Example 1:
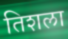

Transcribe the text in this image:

तिशला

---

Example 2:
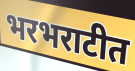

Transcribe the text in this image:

भरभराटीत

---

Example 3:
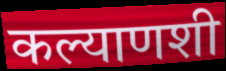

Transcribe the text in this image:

कल्याणशी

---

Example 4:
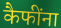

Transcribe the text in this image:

कैफींना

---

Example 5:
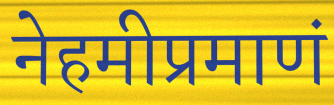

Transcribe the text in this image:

नेहमीप्रमाणं